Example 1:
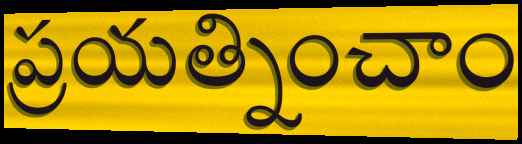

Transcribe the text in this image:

ప్రయత్నించాం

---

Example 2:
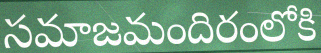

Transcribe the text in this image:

సమాజమందిరంలోకి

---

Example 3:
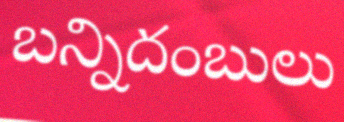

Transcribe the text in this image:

బన్నిదంబులు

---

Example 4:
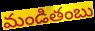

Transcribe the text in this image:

మండితంబు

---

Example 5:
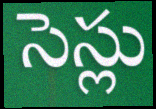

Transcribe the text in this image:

సెస్లు